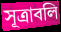
সূত্রাবলি